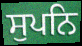
ਸੁਪਨਿ